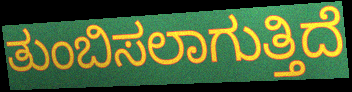
ತುಂಬಿಸಲಾಗುತ್ತಿದೆ